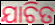
ଯାଚିତ